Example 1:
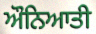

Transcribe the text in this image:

ਔਨਿਆਤੀ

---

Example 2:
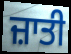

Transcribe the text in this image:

ਜ਼ਾਤੀ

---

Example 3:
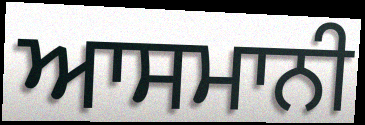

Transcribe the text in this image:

ਆਸਮਾਨੀ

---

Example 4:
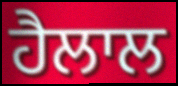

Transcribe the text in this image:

ਹੈਲਾਲ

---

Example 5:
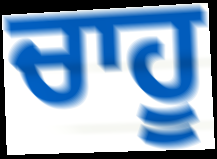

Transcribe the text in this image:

ਚਾਹੂ